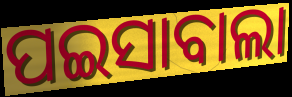
ପଇସାବାଲା